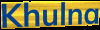
Khulna